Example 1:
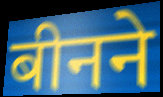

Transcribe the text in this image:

बीनने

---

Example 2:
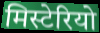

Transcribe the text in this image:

मिस्टेरियो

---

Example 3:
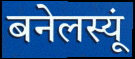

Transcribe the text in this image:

बनेलस्यूं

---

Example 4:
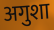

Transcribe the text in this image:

अगुशा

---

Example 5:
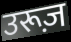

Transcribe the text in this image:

उरूज़